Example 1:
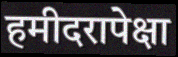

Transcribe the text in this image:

हमीदरापेक्षा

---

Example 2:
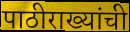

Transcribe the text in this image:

पाठीराख्यांची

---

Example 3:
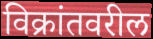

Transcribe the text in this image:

विक्रांतवरील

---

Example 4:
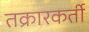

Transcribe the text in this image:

तक्रारकर्ती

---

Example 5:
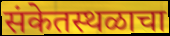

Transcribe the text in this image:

संकेतस्थळाचा